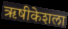
ऋषीकेशला